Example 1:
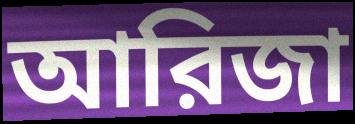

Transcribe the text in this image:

আরিজা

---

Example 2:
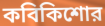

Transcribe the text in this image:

কবিকিশোর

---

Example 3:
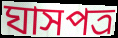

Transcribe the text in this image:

ঘাসপত্র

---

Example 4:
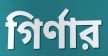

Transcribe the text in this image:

গির্ণার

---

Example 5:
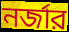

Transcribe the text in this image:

নর্জার